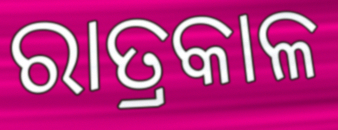
ରାତ୍ରକାଳ